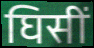
घिसीं